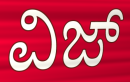
ವಿಜ್